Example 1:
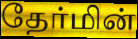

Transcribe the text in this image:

தேர்மின்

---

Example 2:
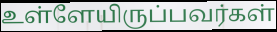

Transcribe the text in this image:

உள்ளேயிருப்பவர்கள்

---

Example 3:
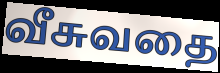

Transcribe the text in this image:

வீசுவதை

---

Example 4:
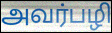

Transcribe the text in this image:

அவர்பழி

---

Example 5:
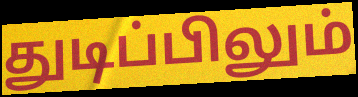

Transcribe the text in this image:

துடிப்பிலும்